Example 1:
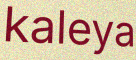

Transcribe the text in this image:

kaleya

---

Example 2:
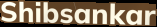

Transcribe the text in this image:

Shibsankar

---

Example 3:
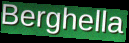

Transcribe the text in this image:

Berghella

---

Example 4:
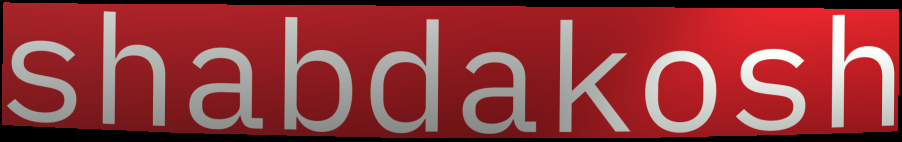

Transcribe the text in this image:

shabdakosh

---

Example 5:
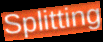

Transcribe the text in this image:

Splitting